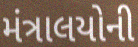
મંત્રાલયોની